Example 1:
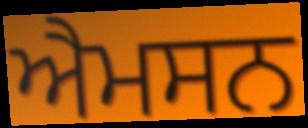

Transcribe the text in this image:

ਐਮਸਨ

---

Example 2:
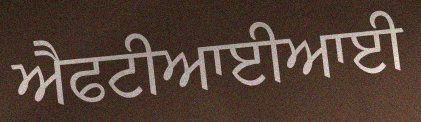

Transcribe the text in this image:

ਐਫਟੀਆਈਆਈ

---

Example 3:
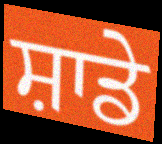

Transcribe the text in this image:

ਸ਼ਾਡੇ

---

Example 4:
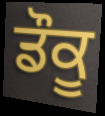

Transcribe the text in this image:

ਡੌਕੂ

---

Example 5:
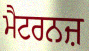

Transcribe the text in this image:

ਮੈਟਰਨਜ਼